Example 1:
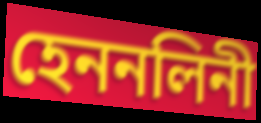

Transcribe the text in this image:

হেননলিনী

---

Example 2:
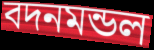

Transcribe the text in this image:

বদনমন্ডল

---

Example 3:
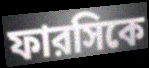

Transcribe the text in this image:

ফারসিকে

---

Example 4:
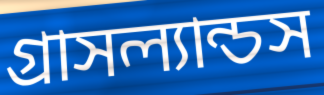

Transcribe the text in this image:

গ্রাসল্যান্ডস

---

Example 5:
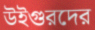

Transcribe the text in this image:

উইগুরদের